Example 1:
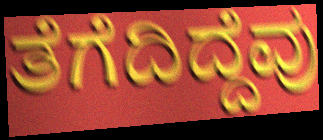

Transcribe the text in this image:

ತೆಗೆದಿದ್ದೆವು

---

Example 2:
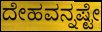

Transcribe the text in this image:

ದೇಹವನ್ನಷ್ಟೇ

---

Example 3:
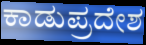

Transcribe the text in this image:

ಕಾಡುಪ್ರದೇಶ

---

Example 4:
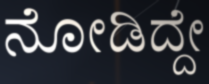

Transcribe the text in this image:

ನೋಡಿದ್ದೇ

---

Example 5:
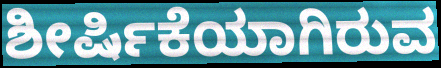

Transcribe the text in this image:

ಶೀರ್ಷಿಕೆಯಾಗಿರುವ